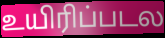
உயிரிப்படல